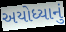
અયોધ્યાનું